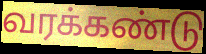
வரக்கண்டு